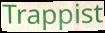
Trappist